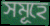
সমূহে